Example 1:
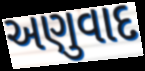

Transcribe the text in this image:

અણુવાદ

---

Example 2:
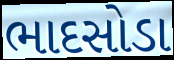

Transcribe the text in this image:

ભાદસોડા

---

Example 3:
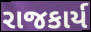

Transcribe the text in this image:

રાજકાર્ય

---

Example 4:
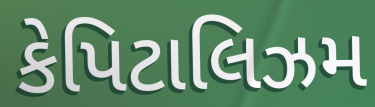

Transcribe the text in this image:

કેપિટાલિઝમ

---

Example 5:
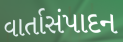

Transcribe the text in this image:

વાર્તાસંપાદન